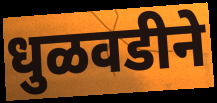
धुळवडीने